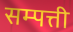
सम्पत्ती